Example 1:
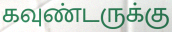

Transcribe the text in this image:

கவுண்டருக்கு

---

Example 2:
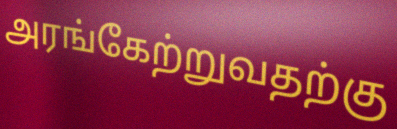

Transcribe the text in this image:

அரங்கேற்றுவதற்கு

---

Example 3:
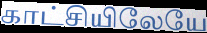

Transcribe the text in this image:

காட்சியிலேயே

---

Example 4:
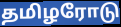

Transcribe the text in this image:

தமிழரோடு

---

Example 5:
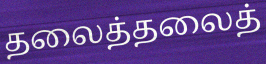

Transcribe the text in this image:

தலைத்தலைத்